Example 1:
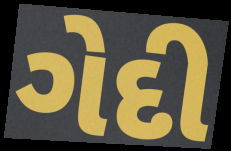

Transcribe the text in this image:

ગેદી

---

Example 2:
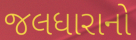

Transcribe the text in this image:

જલધારાનો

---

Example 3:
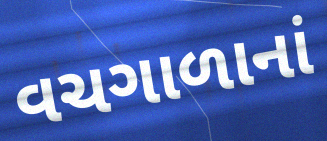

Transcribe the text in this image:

વચગાળાનાં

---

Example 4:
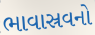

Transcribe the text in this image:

ભાવાસ્રવનો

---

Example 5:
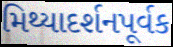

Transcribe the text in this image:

મિથ્યાદર્શનપૂર્વક